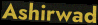
Ashirwad